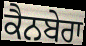
ਕੈਨਬੇਰਾ